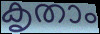
കൃതാം